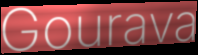
Gourava